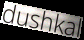
dushkal